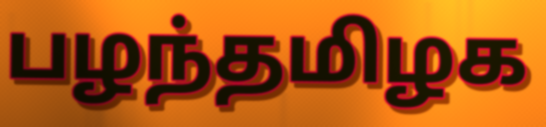
பழந்தமிழக